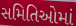
સમિતિઓમાં